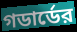
গডার্ডের